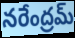
నరేంద్రమ్